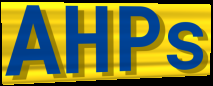
AHPs